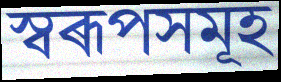
স্বৰূপসমূহ